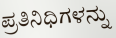
ಪ್ರತಿನಿಧಿಗಳನ್ನು